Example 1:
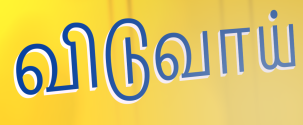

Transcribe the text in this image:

விடுவாய்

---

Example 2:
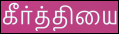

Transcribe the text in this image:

கீர்த்தியை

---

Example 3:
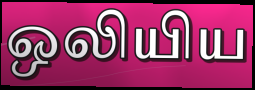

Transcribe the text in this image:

ஒலியிய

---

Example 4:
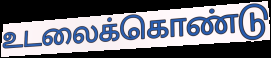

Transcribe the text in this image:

உடலைக்கொண்டு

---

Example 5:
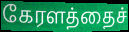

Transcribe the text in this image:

கேரளத்தைச்